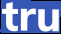
tru